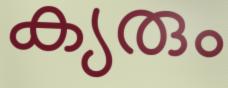
ക്യരും